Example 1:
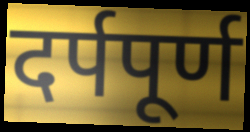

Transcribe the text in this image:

दर्पपूर्ण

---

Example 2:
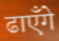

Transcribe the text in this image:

ढाएँगे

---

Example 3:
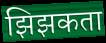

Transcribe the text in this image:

झिझकता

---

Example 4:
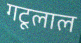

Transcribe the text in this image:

गटूलाल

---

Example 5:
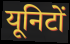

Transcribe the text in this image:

यूनिटों